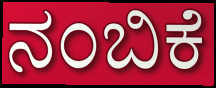
ನಂಬಿಕೆ